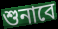
শুনাবে